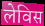
लेविस